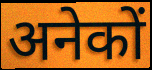
अनेकों